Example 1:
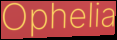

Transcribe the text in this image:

Ophelia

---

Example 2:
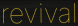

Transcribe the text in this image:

revival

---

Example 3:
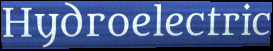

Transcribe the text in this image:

Hydroelectric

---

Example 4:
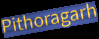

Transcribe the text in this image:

Pithoragarh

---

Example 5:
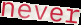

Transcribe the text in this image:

never